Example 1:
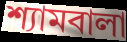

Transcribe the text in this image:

শ্যামবালা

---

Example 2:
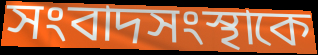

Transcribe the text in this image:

সংবাদসংস্থাকে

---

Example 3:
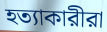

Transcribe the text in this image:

হত্যাকারীরা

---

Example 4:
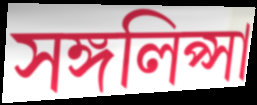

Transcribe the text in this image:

সঙ্গলিপ্সা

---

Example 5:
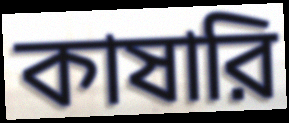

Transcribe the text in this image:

কাষারি